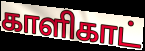
காளிகாட்